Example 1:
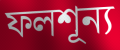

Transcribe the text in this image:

ফলশূন্য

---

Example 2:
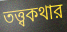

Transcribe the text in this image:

তত্ত্বকথার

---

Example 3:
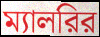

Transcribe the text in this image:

ম্যালরির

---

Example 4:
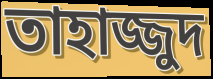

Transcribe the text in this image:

তাহাজ্জুদ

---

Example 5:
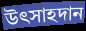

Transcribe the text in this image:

উৎসাহদান